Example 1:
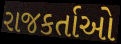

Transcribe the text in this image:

રાજકર્તાઓ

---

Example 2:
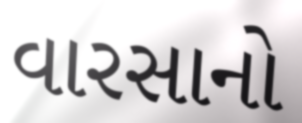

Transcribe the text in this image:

વારસાનો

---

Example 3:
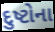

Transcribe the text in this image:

દુષ્ટોના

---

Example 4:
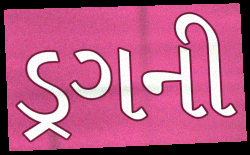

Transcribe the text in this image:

ડ્રગની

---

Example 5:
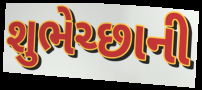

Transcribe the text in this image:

શુભેચ્છાની